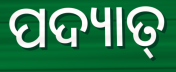
ପଦ୍ୟାତ୍